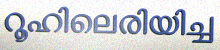
റൂഹിലെരിയിച്ച